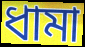
ধামা